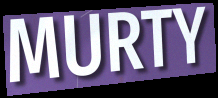
MURTY